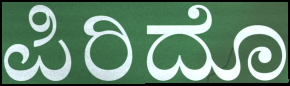
ಪಿರಿದೊ